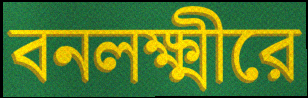
বনলক্ষ্মীরে